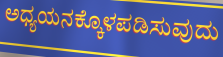
ಅಧ್ಯಯನಕ್ಕೊಳಪಡಿಸುವುದು